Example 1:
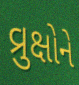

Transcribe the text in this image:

વ્રુક્ષોને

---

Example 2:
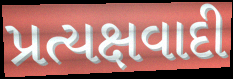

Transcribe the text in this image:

પ્રત્યક્ષવાદી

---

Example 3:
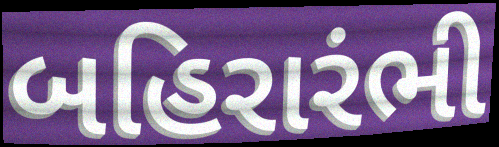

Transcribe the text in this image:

બહિરારંભી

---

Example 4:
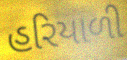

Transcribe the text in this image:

હરિયાળી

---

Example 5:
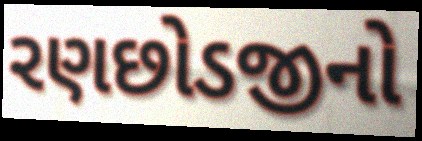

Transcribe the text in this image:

રણછોડજીનો